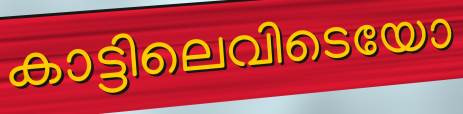
കാട്ടിലെവിടെയോ